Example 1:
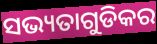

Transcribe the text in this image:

ସଭ୍ୟତାଗୁଡିକର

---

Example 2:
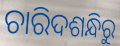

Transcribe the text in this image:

ଚାରିଦଶନ୍ଧିରୁ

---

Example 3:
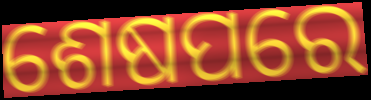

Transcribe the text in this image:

ଶେଷପରେ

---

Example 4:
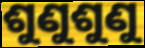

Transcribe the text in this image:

ଶୁଣୁଶୁଣୁ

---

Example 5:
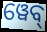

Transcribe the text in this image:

ୱେବ୍